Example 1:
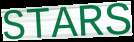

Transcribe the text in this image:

STARS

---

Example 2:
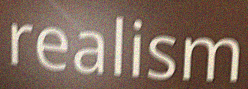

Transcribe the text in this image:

realism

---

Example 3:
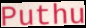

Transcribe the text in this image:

Puthu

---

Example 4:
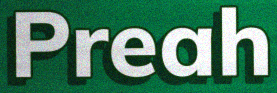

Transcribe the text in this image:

Preah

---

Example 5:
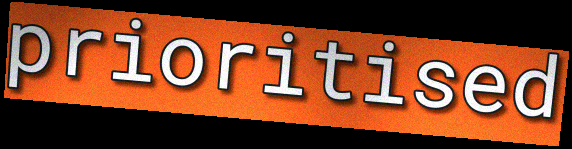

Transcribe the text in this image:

prioritised